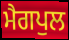
ਮੈਗਪੁਲ